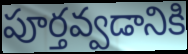
పూర్తవ్వడానికి